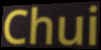
Chui